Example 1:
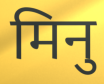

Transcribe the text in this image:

मिनु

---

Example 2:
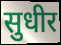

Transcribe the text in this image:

सुधीर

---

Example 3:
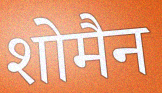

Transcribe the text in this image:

शोमैन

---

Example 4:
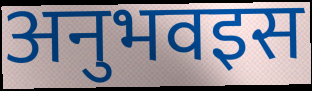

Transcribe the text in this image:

अनुभवइस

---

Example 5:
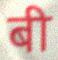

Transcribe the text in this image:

बी